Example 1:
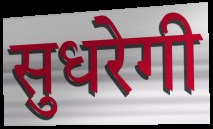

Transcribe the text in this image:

सुधरेगी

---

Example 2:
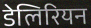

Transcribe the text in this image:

डेलिरियन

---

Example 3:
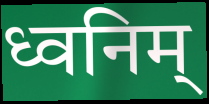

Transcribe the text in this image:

ध्वनिम्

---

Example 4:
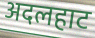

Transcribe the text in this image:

अदलहाट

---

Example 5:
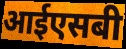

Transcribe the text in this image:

आईएसबी